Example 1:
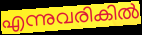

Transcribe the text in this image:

എന്നുവരികിൽ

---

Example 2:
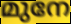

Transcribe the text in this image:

മുനേ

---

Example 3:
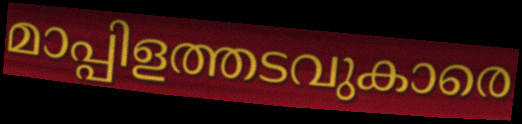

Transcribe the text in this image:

മാപ്പിളത്തടവുകാരെ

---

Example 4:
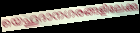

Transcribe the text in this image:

യെഹൂദാനഗരങ്ങളിലേക്കു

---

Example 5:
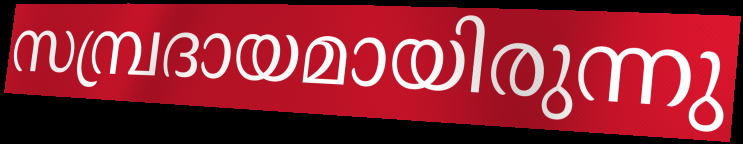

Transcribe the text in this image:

സമ്പ്രദായമായിരുന്നു